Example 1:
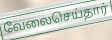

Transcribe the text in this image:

வேலைசெய்தார்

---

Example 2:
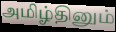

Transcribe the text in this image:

அமிழ்தினும்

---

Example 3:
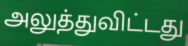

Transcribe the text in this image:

அலுத்துவிட்டது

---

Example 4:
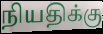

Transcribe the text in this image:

நியதிக்கு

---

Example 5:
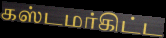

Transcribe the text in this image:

கஸ்டமர்கிட்ட